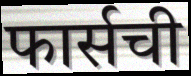
फार्सची